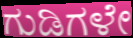
ಗುಡಿಗಳೇ